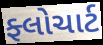
ફ્લોચાર્ટ